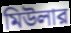
মিউলার